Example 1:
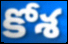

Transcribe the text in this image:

కోశ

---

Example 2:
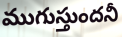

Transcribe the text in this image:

ముగుస్తుందనీ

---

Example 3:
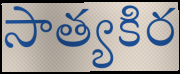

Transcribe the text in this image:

సాత్యకిర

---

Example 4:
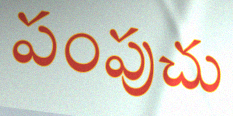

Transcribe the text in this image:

పంపుచు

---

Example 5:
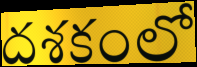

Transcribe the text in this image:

దశకంలో